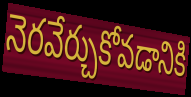
నెరవేర్చుకోవడానికి